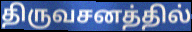
திருவசனத்தில்